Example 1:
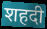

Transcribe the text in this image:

शहदी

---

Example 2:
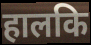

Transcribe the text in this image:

हालकि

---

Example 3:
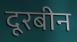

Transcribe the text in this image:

दूरबीन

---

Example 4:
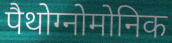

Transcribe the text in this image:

पैथोग्नोमोनिक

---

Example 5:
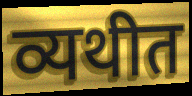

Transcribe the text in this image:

व्यथीत